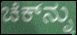
ಚೆಕ್‌ನ್ನು